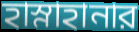
হাস্নাহানার